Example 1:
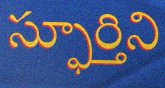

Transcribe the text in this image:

స్ఫూర్తిని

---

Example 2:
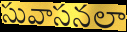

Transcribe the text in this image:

సువాసనలా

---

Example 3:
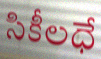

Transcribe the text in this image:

సికీలధే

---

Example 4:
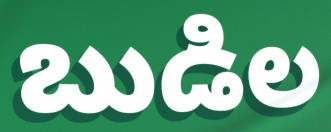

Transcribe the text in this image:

బుడిల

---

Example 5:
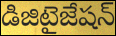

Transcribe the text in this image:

డిజిటైజేషన్